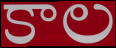
కాల